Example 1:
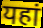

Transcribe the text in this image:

यहां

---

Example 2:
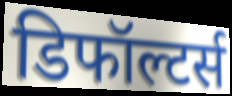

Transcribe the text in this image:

डिफॉल्टर्स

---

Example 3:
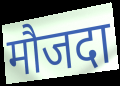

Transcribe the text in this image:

मौजदा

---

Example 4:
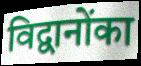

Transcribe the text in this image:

विद्वानोंका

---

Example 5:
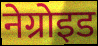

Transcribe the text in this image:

नेग्रोइड